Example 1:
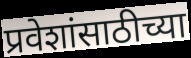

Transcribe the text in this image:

प्रवेशांसाठीच्या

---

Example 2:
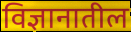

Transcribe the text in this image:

विज्ञानातील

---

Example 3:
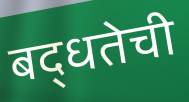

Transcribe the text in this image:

बद्धतेची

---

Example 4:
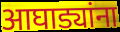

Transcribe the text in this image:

आघाड्यांना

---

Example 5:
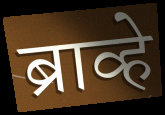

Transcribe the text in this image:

ब्राव्हे